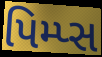
પિમ્પ્સ